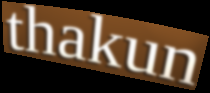
thakun